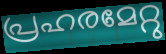
പ്രഹരമേറ്റു